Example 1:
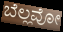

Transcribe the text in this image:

ಬೆಲ್ಲವೋ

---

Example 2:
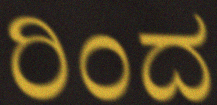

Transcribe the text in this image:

ರಿಂದ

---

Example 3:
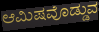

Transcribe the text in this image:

ಆಮಿಷವೊಡ್ಡುವ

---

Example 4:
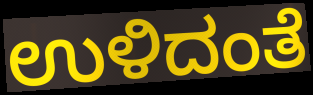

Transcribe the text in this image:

ಉಳಿದಂತೆ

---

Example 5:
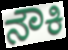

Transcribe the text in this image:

ನೌಕಿ